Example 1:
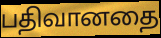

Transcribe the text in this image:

பதிவானதை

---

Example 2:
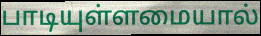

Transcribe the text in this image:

பாடியுள்ளமையால்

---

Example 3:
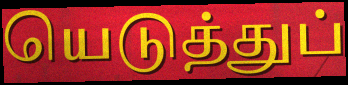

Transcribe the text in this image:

யெடுத்துப்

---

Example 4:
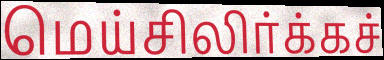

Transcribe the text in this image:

மெய்சிலிர்க்கச்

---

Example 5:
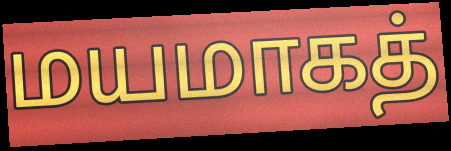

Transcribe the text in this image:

மயமாகத்